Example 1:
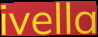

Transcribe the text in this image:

ivella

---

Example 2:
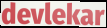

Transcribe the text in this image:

devlekar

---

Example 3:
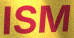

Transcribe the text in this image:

ISM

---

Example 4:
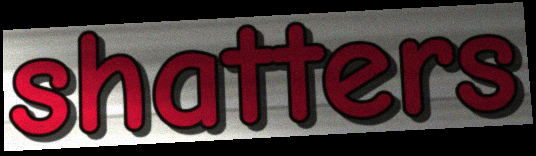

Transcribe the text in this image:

shatters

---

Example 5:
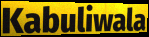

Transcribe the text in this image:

Kabuliwala